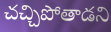
చచ్చిపోతాడని